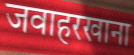
जवाहरखाना